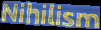
Nihilism